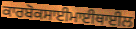
ਕਾਰਬੋਕਸਾਈਮਾਈਥਾਈਲ